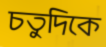
চতুদিকে